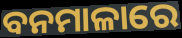
ବନମାଳାରେ